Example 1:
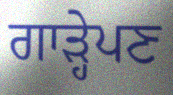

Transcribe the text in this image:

ਗਾੜ੍ਹੇਪਣ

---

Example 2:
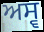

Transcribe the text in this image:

ਅਸ੍ਵ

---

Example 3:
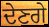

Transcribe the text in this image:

ਦੇਣਗੇ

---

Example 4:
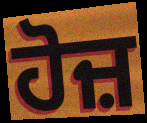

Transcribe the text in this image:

ਹੋਜ਼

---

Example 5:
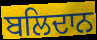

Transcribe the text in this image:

ਬਲਿਦਾਨ